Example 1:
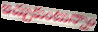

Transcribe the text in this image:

ఇచ్చుకుంటున్నాం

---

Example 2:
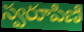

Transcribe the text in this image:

స్వరూపిణి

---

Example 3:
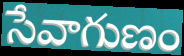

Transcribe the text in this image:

సేవాగుణం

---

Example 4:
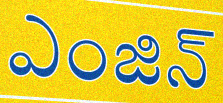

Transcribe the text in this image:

ఎంజిన్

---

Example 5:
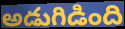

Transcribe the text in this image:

అడుగిడింది